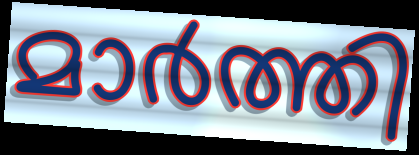
മാർത്തി